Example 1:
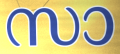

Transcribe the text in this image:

സാ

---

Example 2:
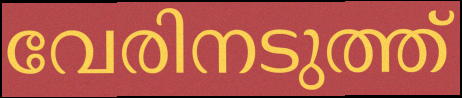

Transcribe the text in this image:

വേരിനടുത്ത്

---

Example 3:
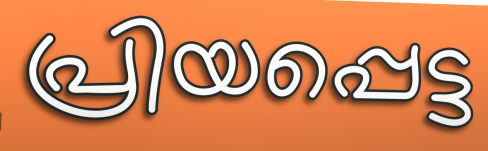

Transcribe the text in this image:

പ്രിയപ്പെട്ട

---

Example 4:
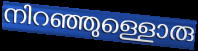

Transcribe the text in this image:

നിറഞ്ഞുള്ളൊരു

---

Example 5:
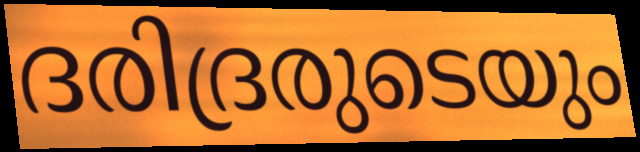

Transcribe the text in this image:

ദരിദ്രരുടെയും